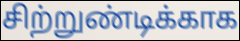
சிற்றுண்டிக்காக